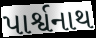
પાર્શ્વનાથ